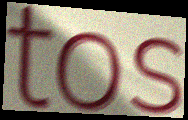
tos